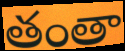
తంతా